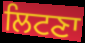
ਲਿਟਣਾ